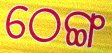
ଠେଙ୍ଗ